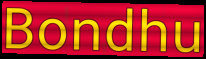
Bondhu